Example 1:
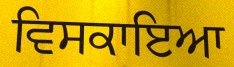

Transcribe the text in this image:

ਵਿਸਕਾਇਆ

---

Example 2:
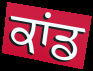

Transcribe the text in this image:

ਕਾਂਡ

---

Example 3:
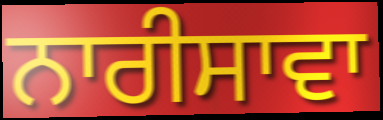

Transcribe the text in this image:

ਨਾਰੀਸਾਵਾ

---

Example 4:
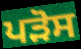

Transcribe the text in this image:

ਪੜੋਸ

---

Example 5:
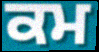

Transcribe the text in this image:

ਕਮ